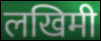
लखिमी